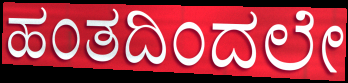
ಹಂತದಿಂದಲೇ